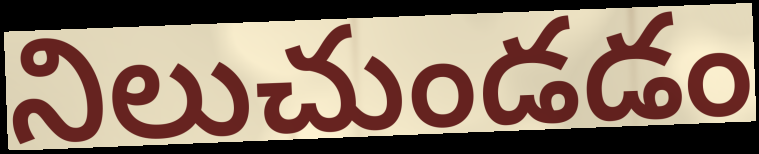
నిలుచుండడం